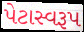
પેટાસ્વરૂપ